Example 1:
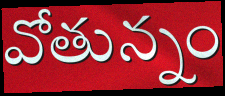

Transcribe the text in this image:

వోతున్నం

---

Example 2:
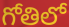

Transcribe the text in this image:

గోతిలో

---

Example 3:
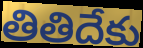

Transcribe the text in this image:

తితిదేకు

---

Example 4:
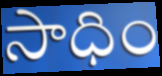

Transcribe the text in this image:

సాధిం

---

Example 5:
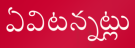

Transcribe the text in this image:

ఏవిటన్నట్లు